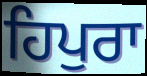
ਹਿਪੁਰਾ